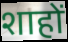
शाहों